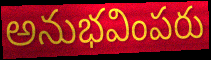
అనుభవింపరు